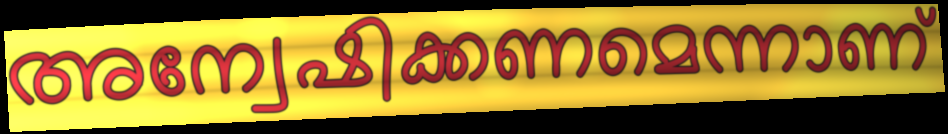
അന്വേഷിക്കണമെന്നാണ്